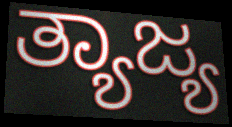
ತ್ಯಾಜ್ಯ